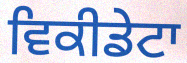
ਵਿਕੀਡੇਟਾ